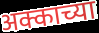
अक्काच्या